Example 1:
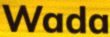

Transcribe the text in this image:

Wada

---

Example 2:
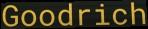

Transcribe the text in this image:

Goodrich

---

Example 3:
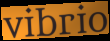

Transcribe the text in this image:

vibrio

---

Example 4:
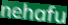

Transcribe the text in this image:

nehafu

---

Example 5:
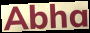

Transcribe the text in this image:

Abha